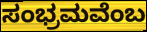
ಸಂಭ್ರಮವೆಂಬ